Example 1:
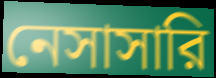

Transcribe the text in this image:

নেসাসারি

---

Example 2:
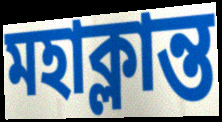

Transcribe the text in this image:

মহাক্লান্ত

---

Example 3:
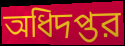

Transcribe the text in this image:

অধিদপ্তর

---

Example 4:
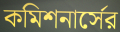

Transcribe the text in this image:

কমিশনার্সের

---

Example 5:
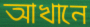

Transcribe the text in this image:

আখানে